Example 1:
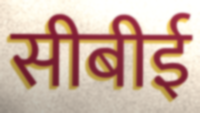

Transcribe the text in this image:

सीबीई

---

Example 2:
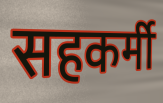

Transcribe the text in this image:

सहकर्मी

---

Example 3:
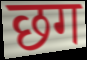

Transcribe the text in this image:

छग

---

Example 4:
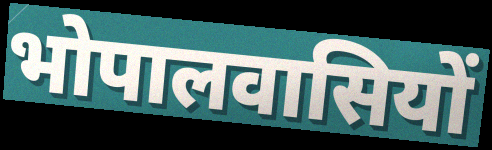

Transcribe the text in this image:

भोपालवासियों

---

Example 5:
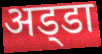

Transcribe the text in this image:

अड्‌डा